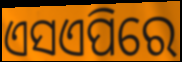
ଏସଏପିରେ